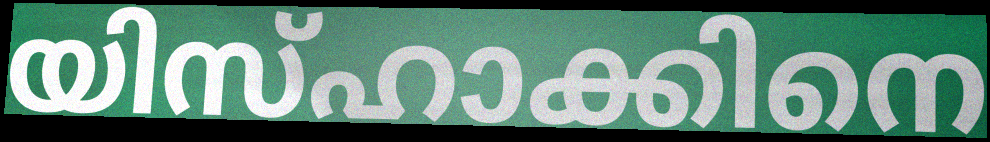
യിസ്ഹാക്കിനെ